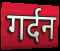
गर्दन